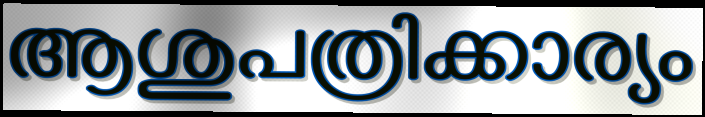
ആശുപത്രിക്കാര്യം